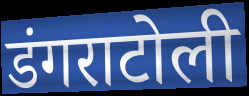
डंगराटोली